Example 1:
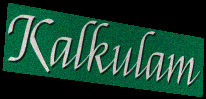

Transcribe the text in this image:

Kalkulam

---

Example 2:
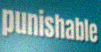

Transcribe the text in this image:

punishable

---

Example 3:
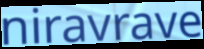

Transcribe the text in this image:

niravrave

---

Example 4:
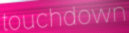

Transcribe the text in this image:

touchdown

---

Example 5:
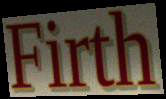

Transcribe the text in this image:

Firth